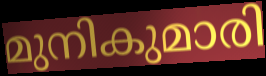
മുനികുമാരി